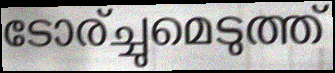
ടോര്ച്ചുമെടുത്ത്